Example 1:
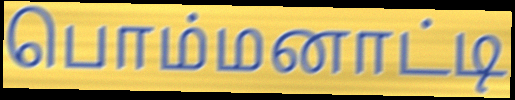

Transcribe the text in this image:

பொம்மனாட்டி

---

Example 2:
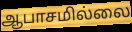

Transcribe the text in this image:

ஆபாசமில்லை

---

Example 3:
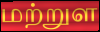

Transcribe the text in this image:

மற்றுள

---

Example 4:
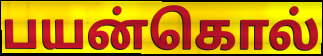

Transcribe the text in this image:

பயன்கொல்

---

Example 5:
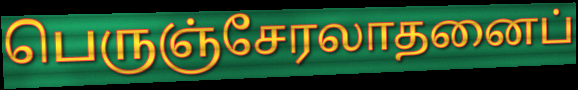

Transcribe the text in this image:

பெருஞ்சேரலாதனைப்